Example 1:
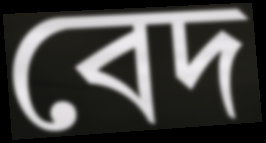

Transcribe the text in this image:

বেদ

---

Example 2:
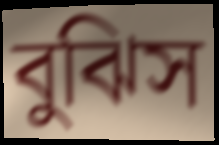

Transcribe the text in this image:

বুঝিস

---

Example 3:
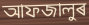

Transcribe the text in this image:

আফজালুৰ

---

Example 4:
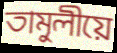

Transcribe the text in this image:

তামুলীয়ে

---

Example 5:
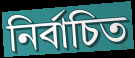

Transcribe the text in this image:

নিৰ্বাচিত